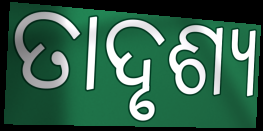
ତାଦୃଶ୍ୟ